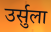
उर्सुला